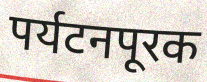
पर्यटनपूरक